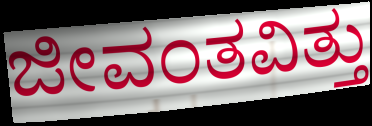
ಜೀವಂತವಿತ್ತು